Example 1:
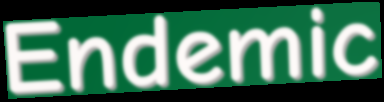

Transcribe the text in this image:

Endemic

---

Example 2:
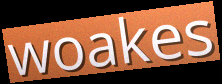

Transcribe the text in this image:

woakes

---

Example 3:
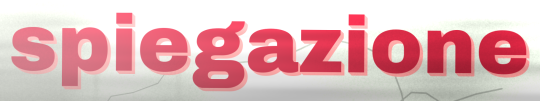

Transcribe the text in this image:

spiegazione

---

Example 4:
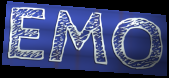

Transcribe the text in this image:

EMO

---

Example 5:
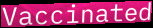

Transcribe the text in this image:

Vaccinated